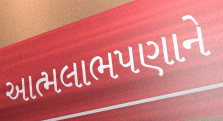
આત્મલાભપણાને